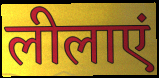
लीलाएं